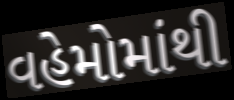
વહેમોમાંથી